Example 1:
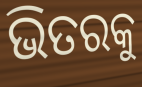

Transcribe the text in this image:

ଭିତରକୁ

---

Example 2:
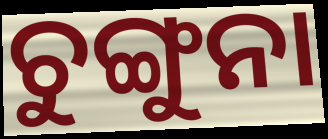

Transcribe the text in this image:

ଚୁଙ୍ଗୁନା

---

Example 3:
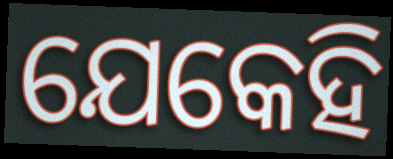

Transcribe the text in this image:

ଯେକେହି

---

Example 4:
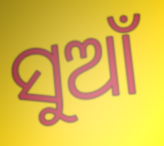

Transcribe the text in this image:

ସୁଆଁ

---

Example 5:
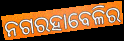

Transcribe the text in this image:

ନଗରହାବେଳିର